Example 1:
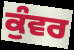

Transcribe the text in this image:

ਕੁੰਵਰ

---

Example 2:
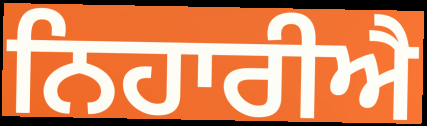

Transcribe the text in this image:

ਨਿਹਾਰੀਐ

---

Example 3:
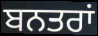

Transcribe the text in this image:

ਬਨਤਰਾਂ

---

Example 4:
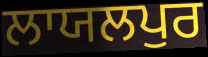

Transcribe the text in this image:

ਲਾਯਲਪੁਰ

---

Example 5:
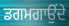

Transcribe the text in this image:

ਡਗਮਗਾਉਂਦੇ